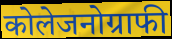
कोलेजनोग्राफी